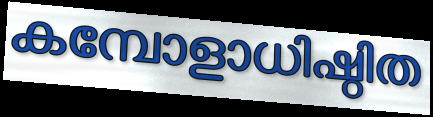
കമ്പോളാധിഷ്ഠിത